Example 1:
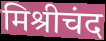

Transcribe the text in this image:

मिश्रीचंद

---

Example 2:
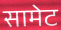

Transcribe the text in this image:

सामेट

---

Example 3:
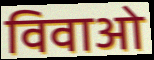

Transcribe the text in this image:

विवाओ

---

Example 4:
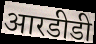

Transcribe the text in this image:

आरडीडी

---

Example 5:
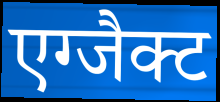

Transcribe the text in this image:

एग्जैक्ट